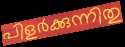
പിളർക്കുന്നിതു